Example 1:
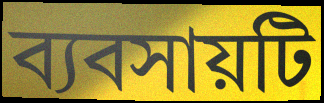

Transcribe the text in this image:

ব্যবসায়টি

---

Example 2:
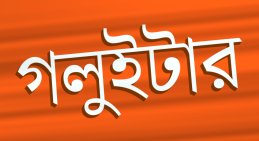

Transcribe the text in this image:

গলুইটার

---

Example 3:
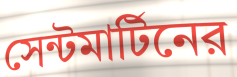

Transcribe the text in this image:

সেন্টমার্টিনের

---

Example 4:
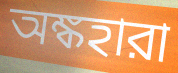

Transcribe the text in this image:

অঙ্কহারা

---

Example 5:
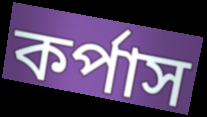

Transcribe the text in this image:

কর্পাস